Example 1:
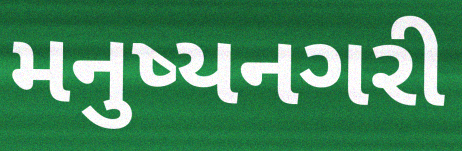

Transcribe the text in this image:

મનુષ્યનગરી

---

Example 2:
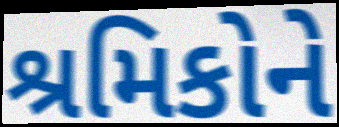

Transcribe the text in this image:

શ્રમિકોને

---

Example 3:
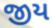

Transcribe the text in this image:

જીય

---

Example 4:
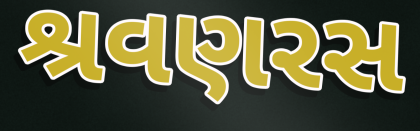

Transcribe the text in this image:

શ્રવણરસ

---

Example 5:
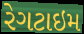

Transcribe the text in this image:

રેગટાઇમ